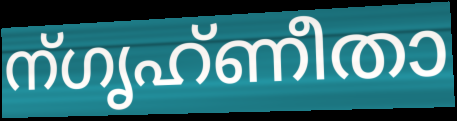
ന്ഗൃഹ്ണീതാ